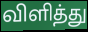
விளித்து